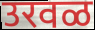
उरवळ